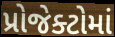
પ્રોજેક્ટોમાં